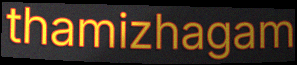
thamizhagam